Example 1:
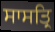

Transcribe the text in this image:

ਸਾਸਤ੍ਰਿ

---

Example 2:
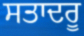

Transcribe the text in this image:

ਸਤਾਦਰੂ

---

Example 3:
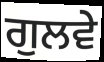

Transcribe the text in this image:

ਗੁਲਵੇ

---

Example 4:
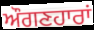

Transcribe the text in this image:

ਔਗਣਹਾਰਾਂ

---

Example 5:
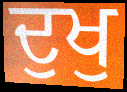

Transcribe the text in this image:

ਦੁਖੁ